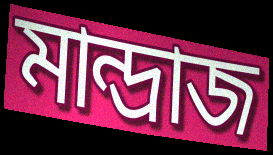
মান্দ্রাজ